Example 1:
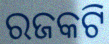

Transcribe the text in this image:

ରଜକଟି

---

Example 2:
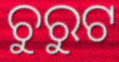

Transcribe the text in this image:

ଚୁରୁଟ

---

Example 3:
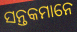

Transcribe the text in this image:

ସନ୍ତକମାନେ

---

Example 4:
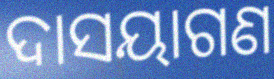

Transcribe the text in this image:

ଦାସୟାଗଣ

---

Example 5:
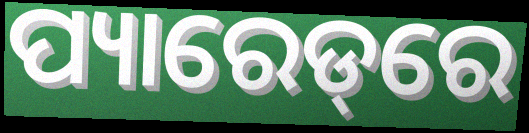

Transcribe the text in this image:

ପ୍ୟାରେଡ୍‌ରେ